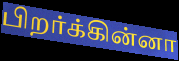
பிறர்க்கின்னா